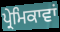
ਪ੍ਰੇਮਿਕਾਵਾਂ